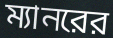
ম্যানরের